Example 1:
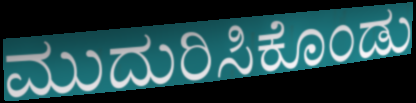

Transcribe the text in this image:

ಮುದುರಿಸಿಕೊಂಡು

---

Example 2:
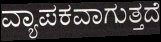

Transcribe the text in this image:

ವ್ಯಾಪಕವಾಗುತ್ತದೆ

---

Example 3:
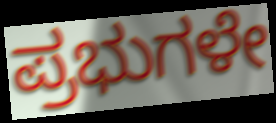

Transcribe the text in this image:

ಪ್ರಭುಗಳೇ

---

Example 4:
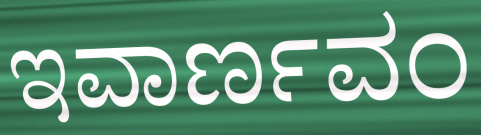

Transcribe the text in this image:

ಇವಾರ್ಣವಂ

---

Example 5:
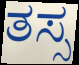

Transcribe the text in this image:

ತಸ್ಸ